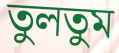
তুলতুম